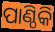
ପାଣ୍ଠିକି